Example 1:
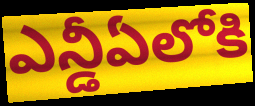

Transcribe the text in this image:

ఎన్డీఏలోకి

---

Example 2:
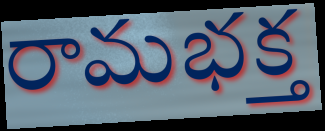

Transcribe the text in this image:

రామభక్త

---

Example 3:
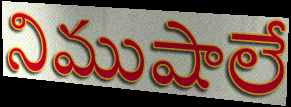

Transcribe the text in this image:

నిముషాలే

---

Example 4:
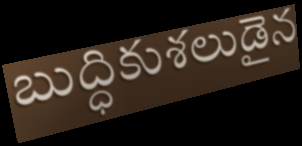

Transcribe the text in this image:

బుద్ధికుశలుడైన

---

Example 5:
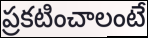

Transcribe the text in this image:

ప్రకటించాలంటే